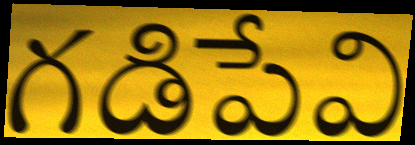
గడిపేవి